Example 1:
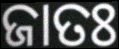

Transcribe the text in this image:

ଜାତଃ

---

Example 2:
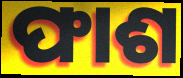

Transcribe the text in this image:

ଫାଶ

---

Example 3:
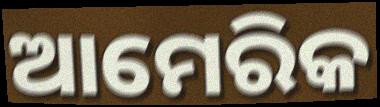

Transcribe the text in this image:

ଆମେରିକ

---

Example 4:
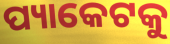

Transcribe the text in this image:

ପ୍ୟାକେଟକୁ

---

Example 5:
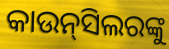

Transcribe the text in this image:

କାଉନ୍‌ସିଲରଙ୍କୁ